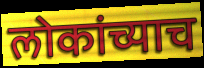
लोकांच्याच